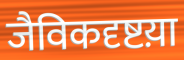
जैविकदृष्टय़ा